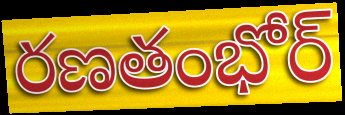
రణతంభోర్